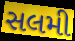
સલમી